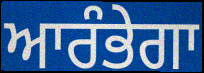
ਆਰੰਭੇਗਾ